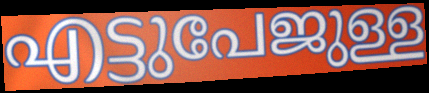
എട്ടുപേജുള്ള